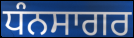
ਧੰਨਸਾਗਰ